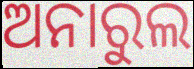
ଅନାରୁଲ